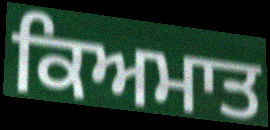
ਕਿਅਮਾਤ